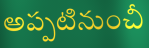
అప్పటినుంచీ